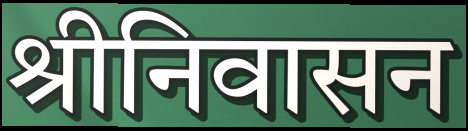
श्रीनिवासन